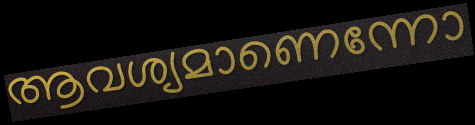
ആവശ്യമാണെന്നോ